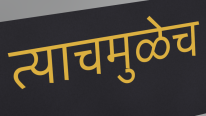
त्याचमुळेच